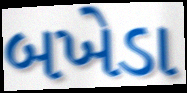
બખેડા